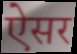
ऐसर